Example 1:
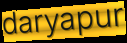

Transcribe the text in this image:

daryapur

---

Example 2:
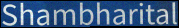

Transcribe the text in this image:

Shambharital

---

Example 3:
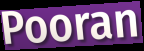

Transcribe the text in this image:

Pooran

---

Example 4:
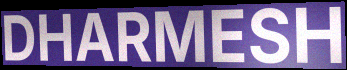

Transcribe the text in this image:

DHARMESH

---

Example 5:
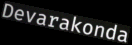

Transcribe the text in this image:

Devarakonda